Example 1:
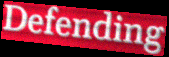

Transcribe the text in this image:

Defending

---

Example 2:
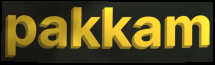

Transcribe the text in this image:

pakkam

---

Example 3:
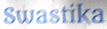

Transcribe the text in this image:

Swastika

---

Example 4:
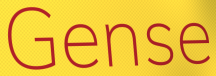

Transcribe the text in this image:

Gense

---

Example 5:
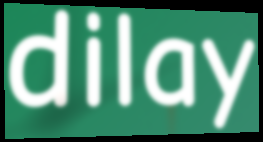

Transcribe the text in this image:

dilay